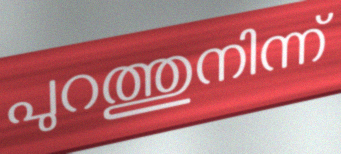
പുറത്തുനിന്ന്